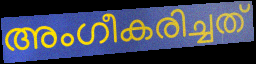
അംഗീകരിച്ചത്